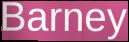
Barney